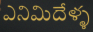
ఎనిమిదేళ్ళ